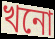
খনো